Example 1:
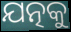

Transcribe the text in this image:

ଯତ୍ନକୁ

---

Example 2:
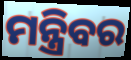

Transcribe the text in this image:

ମନ୍ତ୍ରିବର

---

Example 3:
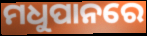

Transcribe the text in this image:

ମଧୁପାନରେ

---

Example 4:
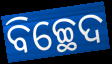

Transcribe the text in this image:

ବିଚ୍ଛେଦ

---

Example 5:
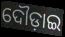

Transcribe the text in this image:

ଦୌଡ଼ାଇ